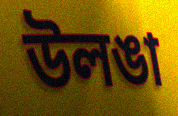
উলঙা